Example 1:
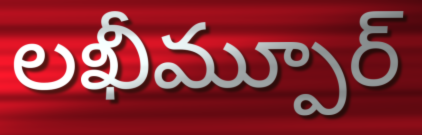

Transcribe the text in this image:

లఖీమ్పూర్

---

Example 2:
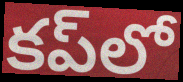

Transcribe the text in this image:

కప్‌లో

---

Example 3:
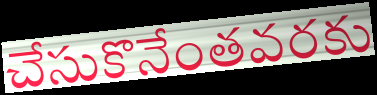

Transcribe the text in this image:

చేసుకొనేంతవరకు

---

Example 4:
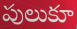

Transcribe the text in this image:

పులుకూ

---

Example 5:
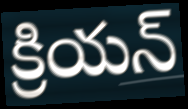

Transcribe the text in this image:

క్రియన్